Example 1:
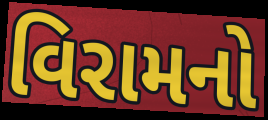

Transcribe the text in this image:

વિરામનો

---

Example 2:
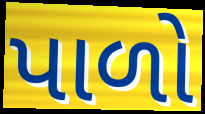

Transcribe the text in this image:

પાળો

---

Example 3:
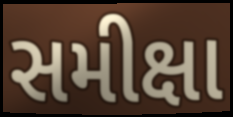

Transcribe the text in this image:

સમીક્ષા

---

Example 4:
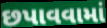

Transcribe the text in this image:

છપાવવામાં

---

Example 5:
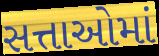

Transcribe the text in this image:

સત્તાઓમાં